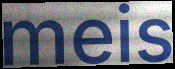
meis